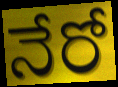
నేరో